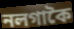
নলগাকৈ